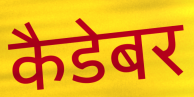
कैडेबर